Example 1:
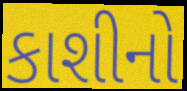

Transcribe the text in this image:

કાશીનો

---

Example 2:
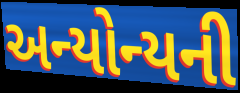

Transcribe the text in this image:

અન્યોન્યની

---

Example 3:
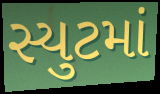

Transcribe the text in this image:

સ્યુટમાં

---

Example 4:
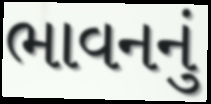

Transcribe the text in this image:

ભાવનનું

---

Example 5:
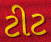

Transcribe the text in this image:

ટીટ